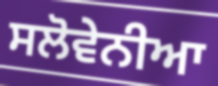
ਸਲੋਵੇਨੀਆ